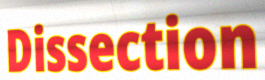
Dissection